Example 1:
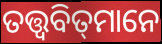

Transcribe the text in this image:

ତତ୍ତ୍ୱବିତ୍‌ମାନେ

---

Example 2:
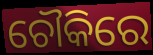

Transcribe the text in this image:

ଚୌକିରେ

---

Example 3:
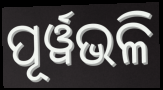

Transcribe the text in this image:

ପୂର୍ୱଭଳି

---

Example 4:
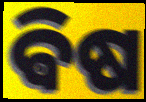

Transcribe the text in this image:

ଵିଷ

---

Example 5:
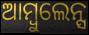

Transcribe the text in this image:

ଆମ୍ବୁଲେନ୍ସ